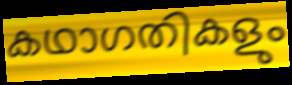
കഥാഗതികളും